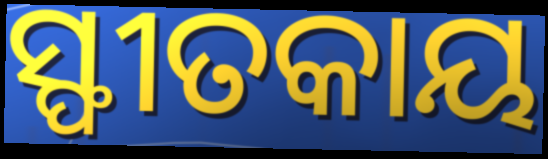
ସ୍ଫୀତକାୟ